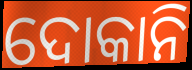
ଦୋକାନି